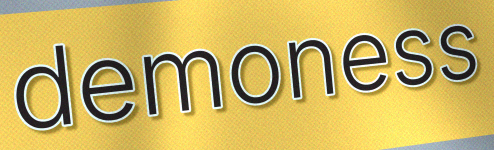
demoness